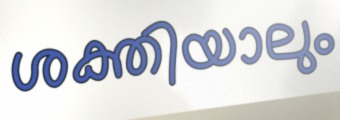
ശക്തിയാലും